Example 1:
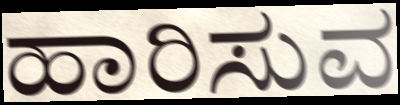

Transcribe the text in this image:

ಹಾರಿಸುವ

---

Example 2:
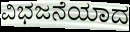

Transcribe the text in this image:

ವಿಭಜನೆಯಾದ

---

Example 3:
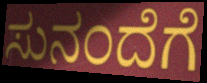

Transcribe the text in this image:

ಸುನಂದೆಗೆ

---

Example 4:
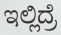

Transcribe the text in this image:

ಇಲ್ಲಿದ್ರೆ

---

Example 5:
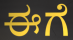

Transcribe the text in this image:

ಈಗೆ